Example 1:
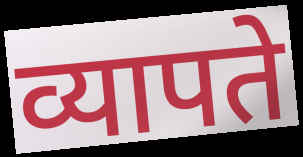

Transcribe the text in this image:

व्यापते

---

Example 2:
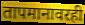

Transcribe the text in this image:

तापमानावरही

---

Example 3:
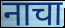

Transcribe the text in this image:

नाचा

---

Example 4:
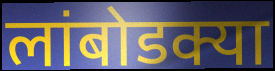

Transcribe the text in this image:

लांबोडक्या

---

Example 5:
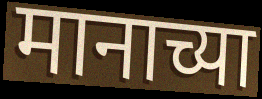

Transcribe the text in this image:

मानाच्या